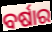
ବର୍ଷାର